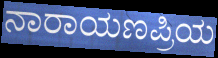
ನಾರಾಯಣಪ್ರಿಯ